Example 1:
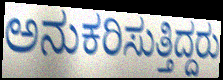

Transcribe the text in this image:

ಅನುಕರಿಸುತ್ತಿದ್ದರು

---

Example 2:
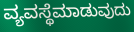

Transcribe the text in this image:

ವ್ಯವಸ್ಥೆಮಾಡುವುದು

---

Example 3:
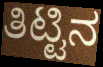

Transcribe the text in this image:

ತಿಟ್ಟಿನ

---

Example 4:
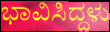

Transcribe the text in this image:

ಭಾವಿಸಿದ್ದಳು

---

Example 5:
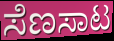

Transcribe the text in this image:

ಸೆಣಸಾಟ